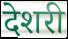
देशरी